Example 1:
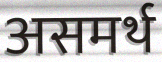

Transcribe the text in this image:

असमर्थ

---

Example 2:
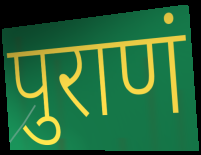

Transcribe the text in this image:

पुराणं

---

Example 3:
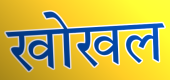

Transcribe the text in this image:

खोखल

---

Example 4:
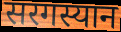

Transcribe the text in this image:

सरगस्यान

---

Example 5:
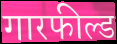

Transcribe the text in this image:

गारफील्ड